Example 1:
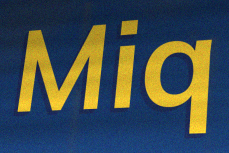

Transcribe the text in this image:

Miq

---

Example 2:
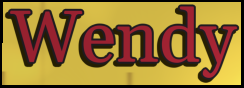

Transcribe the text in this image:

Wendy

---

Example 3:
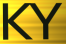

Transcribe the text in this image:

KY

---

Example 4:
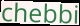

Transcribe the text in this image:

chebbi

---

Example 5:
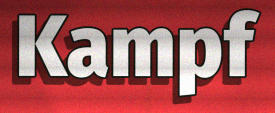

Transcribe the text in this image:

Kampf